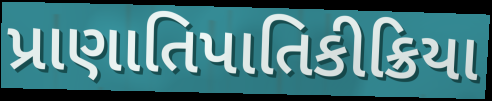
પ્રાણાતિપાતિકીક્રિયા